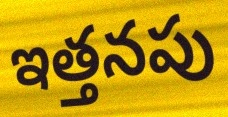
ఇత్తనపు